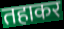
तहाकर